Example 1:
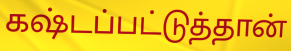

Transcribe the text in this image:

கஷ்டப்பட்டுத்தான்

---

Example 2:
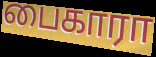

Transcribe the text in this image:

பைகாரா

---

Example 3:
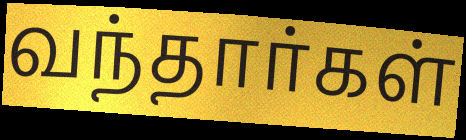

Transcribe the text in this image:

வந்தார்கள்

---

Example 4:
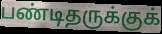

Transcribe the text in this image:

பண்டிதருக்குக்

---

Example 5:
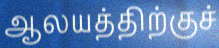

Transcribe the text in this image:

ஆலயத்திற்குச்